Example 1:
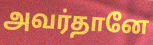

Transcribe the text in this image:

அவர்தானே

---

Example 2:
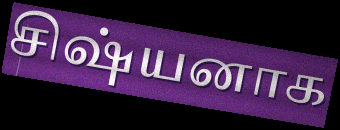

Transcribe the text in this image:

சிஷ்யனாக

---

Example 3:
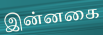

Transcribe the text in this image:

இன்னகை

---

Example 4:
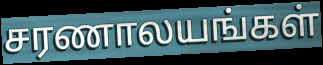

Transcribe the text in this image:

சரணாலயங்கள்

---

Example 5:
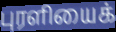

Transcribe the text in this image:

புரளியைக்